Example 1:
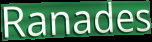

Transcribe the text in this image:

Ranades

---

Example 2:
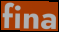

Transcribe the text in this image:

fina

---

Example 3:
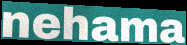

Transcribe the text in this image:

nehama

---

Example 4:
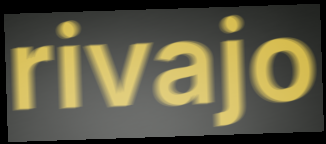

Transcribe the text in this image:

rivajo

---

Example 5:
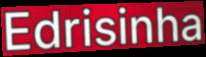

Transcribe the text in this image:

Edrisinha